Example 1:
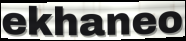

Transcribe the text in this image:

ekhaneo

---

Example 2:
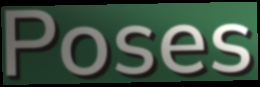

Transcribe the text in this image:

Poses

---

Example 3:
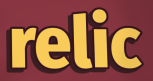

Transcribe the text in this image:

relic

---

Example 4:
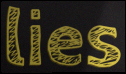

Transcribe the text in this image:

lies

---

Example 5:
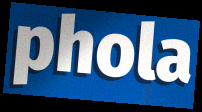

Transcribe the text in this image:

phola